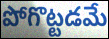
పోగొట్టడమే